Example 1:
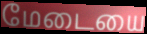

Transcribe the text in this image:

மேடையை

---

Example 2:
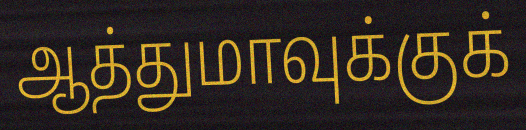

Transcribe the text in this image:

ஆத்துமாவுக்குக்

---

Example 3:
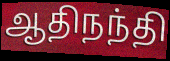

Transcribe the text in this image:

ஆதிநந்தி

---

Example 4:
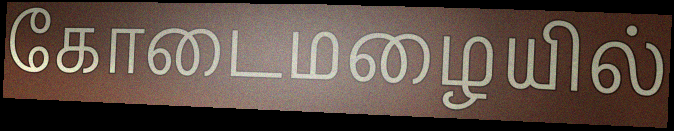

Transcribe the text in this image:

கோடைமழையில்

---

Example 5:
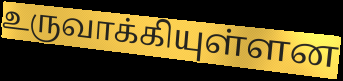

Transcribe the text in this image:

உருவாக்கியுள்ளன